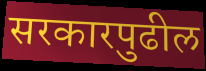
सरकारपुढील